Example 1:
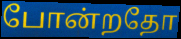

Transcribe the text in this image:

போன்றதோ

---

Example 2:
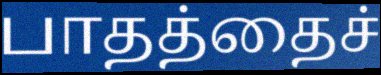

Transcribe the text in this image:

பாதத்தைச்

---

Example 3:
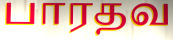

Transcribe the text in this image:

பாரதவ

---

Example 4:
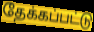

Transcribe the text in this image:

தேக்கப்பட்டு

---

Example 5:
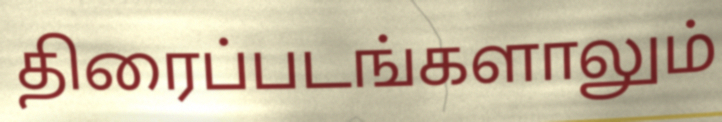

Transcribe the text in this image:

திரைப்படங்களாலும்